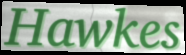
Hawkes